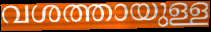
വശത്തായുള്ള